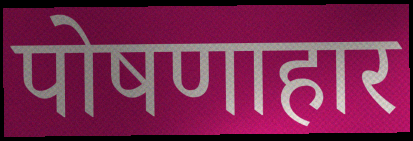
पोषणाहार